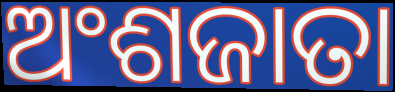
ଅଂଶଜାତା